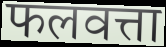
फलवत्ता